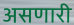
असणारी